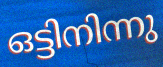
ഒട്ടിനിന്നു